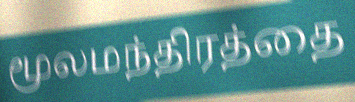
மூலமந்திரத்தை